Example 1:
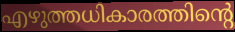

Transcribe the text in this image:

എഴുത്തധികാരത്തിന്റെ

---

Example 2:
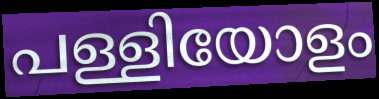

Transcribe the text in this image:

പള്ളിയോളം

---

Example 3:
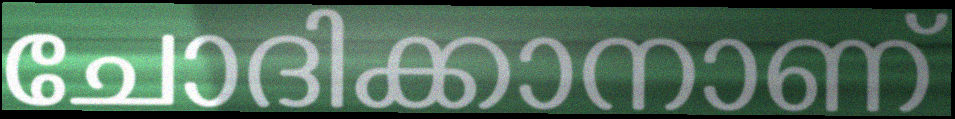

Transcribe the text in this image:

ചോദിക്കാനാണ്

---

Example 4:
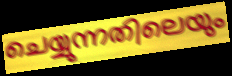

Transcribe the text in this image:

ചെയ്യുന്നതിലെയും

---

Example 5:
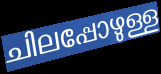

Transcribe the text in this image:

ചിലപ്പോഴുള്ള